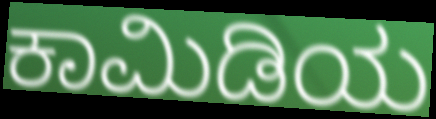
ಕಾಮಿಡಿಯ